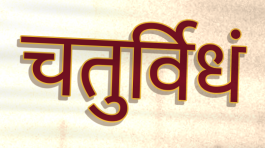
चतुर्विधं